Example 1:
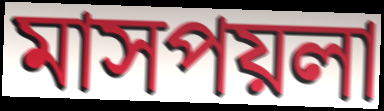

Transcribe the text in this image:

মাসপয়লা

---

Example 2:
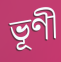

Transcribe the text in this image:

ভূণী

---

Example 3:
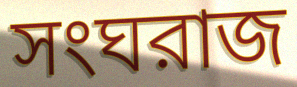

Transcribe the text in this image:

সংঘরাজ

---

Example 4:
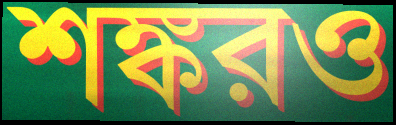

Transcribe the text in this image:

শঙ্করও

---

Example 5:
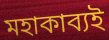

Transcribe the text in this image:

মহাকাব্যই